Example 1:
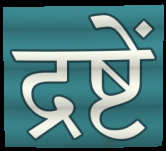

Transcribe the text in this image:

द्रष्टें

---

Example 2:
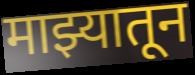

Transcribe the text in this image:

माझ्यातून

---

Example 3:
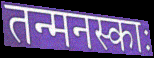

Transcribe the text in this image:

तन्मनस्काः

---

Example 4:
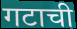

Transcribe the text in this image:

गटाची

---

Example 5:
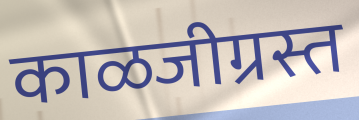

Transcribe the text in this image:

काळजीग्रस्त